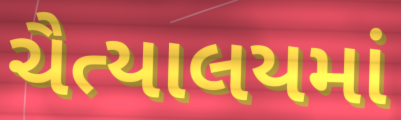
ચૈત્યાલયમાં